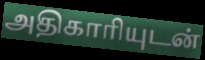
அதிகாரியுடன்